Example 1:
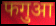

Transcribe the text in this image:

फगुआ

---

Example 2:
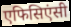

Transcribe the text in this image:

एफिसिएंसी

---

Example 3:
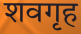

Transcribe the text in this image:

शवगृह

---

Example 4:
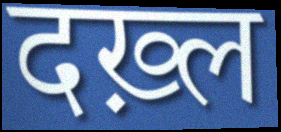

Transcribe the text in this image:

दख़्ल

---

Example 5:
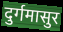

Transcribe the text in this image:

दुर्गमासुर